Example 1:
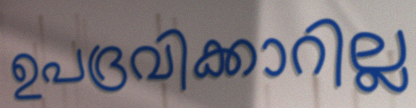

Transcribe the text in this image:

ഉപദ്രവിക്കാറില്ല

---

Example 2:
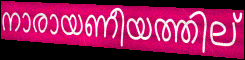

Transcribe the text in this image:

നാരായണീയത്തില്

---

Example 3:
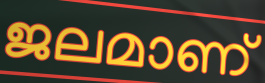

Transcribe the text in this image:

ജലമാണ്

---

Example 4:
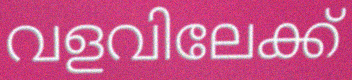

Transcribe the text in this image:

വളവിലേക്ക്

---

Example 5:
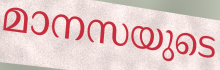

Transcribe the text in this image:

മാനസയുടെ